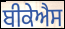
ਬੀਕੇਐਸ